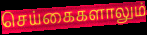
செய்கைகளாலும்